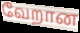
வேறான